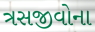
ત્રસજીવોના